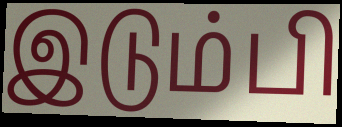
இடும்பி